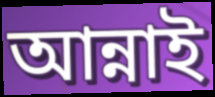
আন্নাই